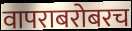
वापराबरोबरच